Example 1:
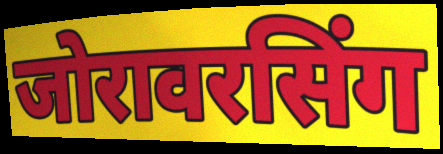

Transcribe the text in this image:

जोरावरसिंग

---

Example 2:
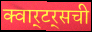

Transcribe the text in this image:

क्वार्टर्सची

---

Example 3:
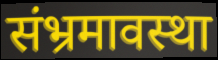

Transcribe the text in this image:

संभ्रमावस्था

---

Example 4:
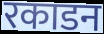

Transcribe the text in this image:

रकाडन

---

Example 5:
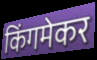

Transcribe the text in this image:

किंगमेकर